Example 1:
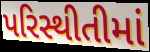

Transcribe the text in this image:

પરિસ્થીતીમાં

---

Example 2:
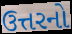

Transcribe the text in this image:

ઉત્તરનો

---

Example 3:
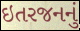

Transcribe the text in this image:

ઇતરજનનું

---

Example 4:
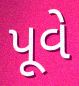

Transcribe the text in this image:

પૂવે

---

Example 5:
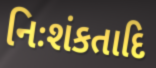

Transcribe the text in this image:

નિઃશંકતાદિ